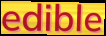
edible